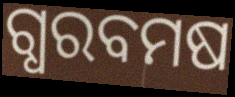
ଗ୍ଧରବମଷ